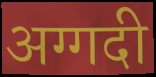
अग्गदी